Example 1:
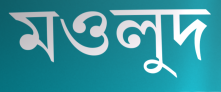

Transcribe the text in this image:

মওলুদ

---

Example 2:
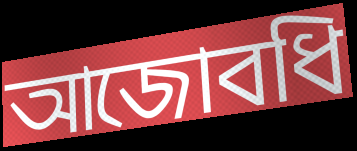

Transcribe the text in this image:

আজোবধি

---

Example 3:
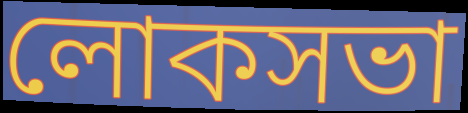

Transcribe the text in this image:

লোকসভা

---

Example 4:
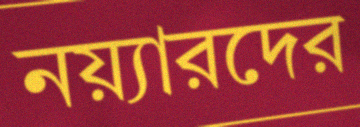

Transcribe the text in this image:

নয়্যারদের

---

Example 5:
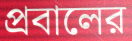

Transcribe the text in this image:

প্রবালের